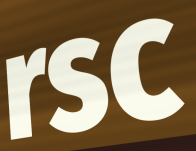
rsc